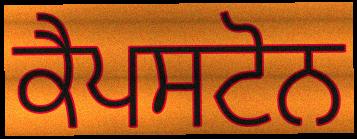
ਕੈਪਸਟੋਨ